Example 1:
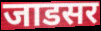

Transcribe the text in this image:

जाडसर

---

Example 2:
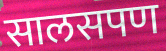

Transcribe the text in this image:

सालसपण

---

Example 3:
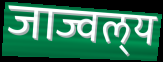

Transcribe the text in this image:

जाज्वल्य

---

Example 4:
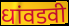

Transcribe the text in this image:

धांवडवी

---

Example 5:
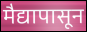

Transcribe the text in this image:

मैद्यापासून